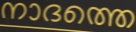
നാദത്തെ